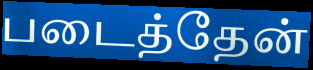
படைத்தேன்